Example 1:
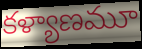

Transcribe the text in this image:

కళ్యాణమూ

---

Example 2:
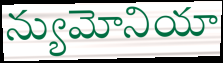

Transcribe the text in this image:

న్యుమోనియా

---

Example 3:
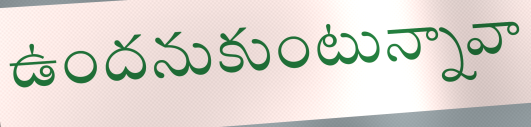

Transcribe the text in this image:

ఉందనుకుంటున్నావా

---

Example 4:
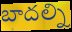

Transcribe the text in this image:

బాదల్ని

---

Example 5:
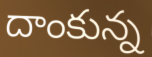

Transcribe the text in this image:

దాంకున్న